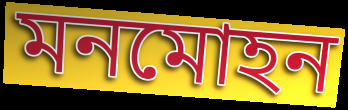
মনমোহন